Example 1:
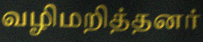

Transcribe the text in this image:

வழிமறித்தனர்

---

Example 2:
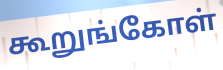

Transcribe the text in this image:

கூறுங்கோள்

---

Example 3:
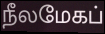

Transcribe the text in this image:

நீலமேகப்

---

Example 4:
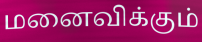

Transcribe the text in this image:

மனைவிக்கும்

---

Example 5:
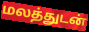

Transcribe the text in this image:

மலத்துடன்